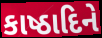
કાષ્ઠાદિને